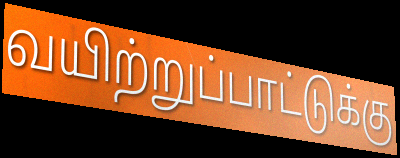
வயிற்றுப்பாட்டுக்கு